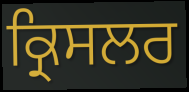
ਕ੍ਰਿਸਲਰ